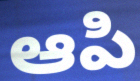
ఆపి